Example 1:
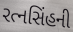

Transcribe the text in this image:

રત્નસિંહની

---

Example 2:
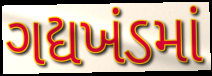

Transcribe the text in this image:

ગદ્યખંડમાં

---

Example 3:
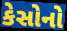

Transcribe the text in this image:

કેસોનો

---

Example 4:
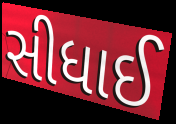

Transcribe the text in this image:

સીધાઈ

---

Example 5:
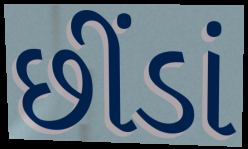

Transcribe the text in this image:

છીંડાં